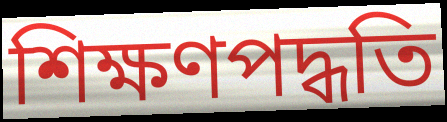
শিক্ষণপদ্ধতি